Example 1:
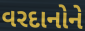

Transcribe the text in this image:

વરદાનોને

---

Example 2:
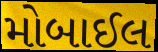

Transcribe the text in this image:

મોબાઈલ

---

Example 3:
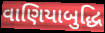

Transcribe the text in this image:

વાણિયાબુદ્ધિ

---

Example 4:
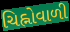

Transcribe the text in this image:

ચિહ્નોવાળી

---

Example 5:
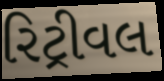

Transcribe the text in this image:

રિટ્રીવલ